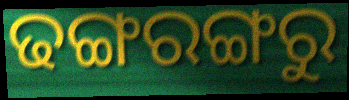
ଢଙ୍ଗରଙ୍ଗରୁ